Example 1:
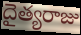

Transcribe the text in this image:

దైత్యరాజు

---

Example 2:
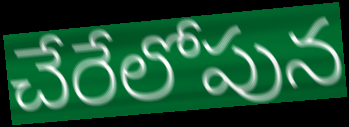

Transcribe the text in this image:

చేరేలోపున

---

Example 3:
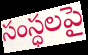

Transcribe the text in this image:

సంస్ధలపై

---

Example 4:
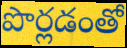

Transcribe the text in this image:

పొర్లడంతో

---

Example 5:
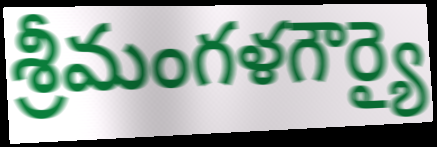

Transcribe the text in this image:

శ్రీమంగళగౌర్యై